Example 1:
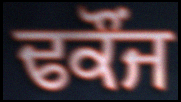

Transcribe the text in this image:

ਢਕੌਂਜ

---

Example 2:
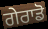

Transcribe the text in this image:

ਗੇਰਾਡੋ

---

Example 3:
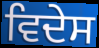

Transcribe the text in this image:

ਵਿਦੇਸ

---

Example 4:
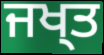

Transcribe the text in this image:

ਜਖ੍ਤ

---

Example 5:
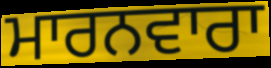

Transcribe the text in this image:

ਮਾਰਨਵਾਰਾ